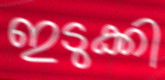
ഇടുക്കി